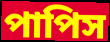
পাপিস